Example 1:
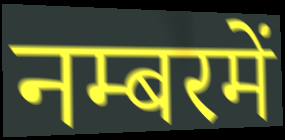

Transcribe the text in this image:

नम्बरमें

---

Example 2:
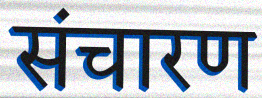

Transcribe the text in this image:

संचारण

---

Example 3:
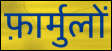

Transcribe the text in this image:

फ़ार्मुलों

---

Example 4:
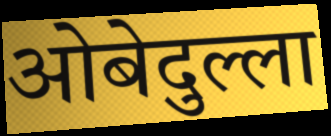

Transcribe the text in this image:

ओबेदुल्ला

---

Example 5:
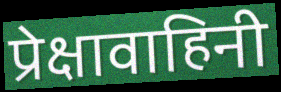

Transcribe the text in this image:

प्रेक्षावाहिनी